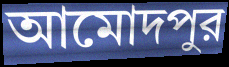
আমোদপুর